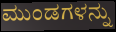
ಮುಂಡಗಳನ್ನು